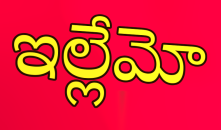
ఇల్లేమో